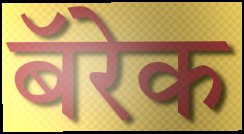
बॅरेक